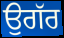
ਉਗੱਰ